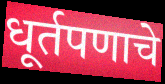
धूर्तपणाचे